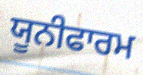
ਯੂਨੀਫਾਰਮ